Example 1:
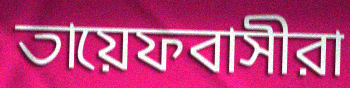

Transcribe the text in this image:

তায়েফবাসীরা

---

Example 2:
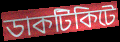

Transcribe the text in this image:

ডাকটিকিটে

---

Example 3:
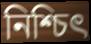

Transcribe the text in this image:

নিশ্চিৎ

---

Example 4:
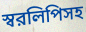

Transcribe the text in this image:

স্বরলিপিসহ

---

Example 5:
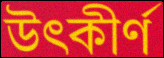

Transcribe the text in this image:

উৎকীর্ণ